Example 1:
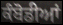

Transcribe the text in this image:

ਕੰਬੋਡੀਆਂ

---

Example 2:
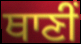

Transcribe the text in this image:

ਥਾਣੀਂ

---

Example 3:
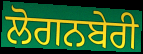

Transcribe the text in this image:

ਲੋਗਨਬੇਰੀ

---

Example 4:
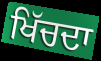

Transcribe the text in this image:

ਖਿੱਚਦਾ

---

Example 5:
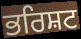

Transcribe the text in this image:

ਭਰਿਸ਼ਟ